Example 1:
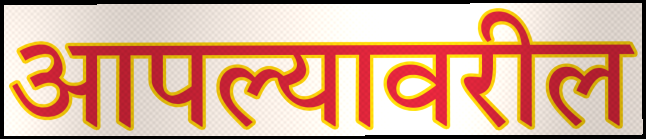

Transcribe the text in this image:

आपल्यावरील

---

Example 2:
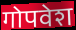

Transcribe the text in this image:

गोपवेश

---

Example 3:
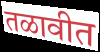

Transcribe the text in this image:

तळावीत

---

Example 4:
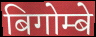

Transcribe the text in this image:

बिगोम्बे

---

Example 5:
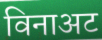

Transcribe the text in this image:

विनाअट